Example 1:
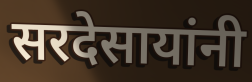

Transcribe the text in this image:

सरदेसायांनी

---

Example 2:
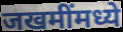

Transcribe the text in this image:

जखमींमध्ये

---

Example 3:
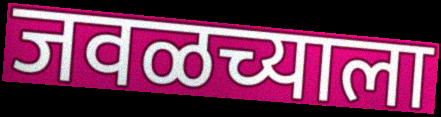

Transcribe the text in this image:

जवळच्याला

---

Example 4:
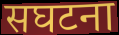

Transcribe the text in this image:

सघटना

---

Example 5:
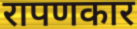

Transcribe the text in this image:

रापणकार